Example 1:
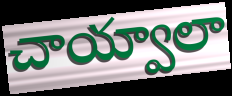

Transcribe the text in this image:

చాయ్వాలా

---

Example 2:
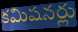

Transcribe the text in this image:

కమిషనర్లు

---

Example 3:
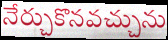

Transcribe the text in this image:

నేర్చుకొనవచ్చును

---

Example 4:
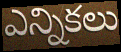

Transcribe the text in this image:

ఎన్నికలు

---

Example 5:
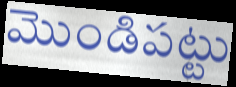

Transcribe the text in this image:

మొండిపట్టు